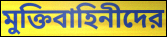
মুক্তিবাহিনীদের